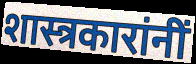
शास्त्रकारांनीं